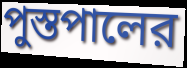
পুস্তপালের